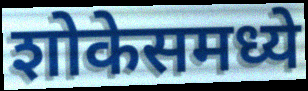
शोकेसमध्ये